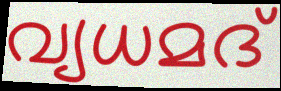
വ്യധമദ്